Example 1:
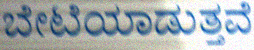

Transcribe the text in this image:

ಬೇಟೆಯಾಡುತ್ತವೆ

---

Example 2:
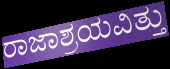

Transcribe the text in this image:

ರಾಜಾಶ್ರಯವಿತ್ತು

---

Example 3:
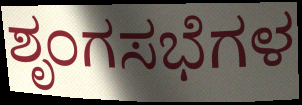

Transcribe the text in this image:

ಶೃಂಗಸಭೆಗಳ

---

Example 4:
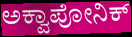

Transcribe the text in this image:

ಅಕ್ವಾಪೋನಿಕ್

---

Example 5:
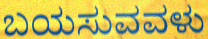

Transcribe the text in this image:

ಬಯಸುವವಳು